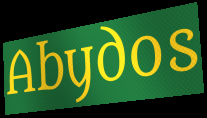
Abydos